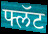
फ्लॅट